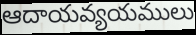
ఆదాయవ్యయములు